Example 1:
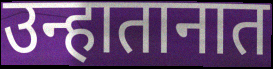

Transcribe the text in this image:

उन्हातानात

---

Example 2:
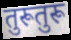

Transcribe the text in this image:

तुरूतुरू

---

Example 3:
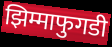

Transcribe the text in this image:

झिम्माफुगडी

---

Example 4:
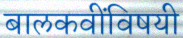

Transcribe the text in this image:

बालकवींविषयी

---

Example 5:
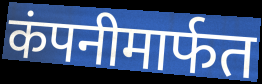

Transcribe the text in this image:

कंपनीमार्फत